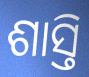
ଶାସ୍ତି